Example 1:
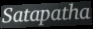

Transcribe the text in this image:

Satapatha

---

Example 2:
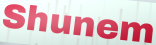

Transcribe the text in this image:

Shunem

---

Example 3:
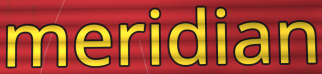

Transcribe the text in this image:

meridian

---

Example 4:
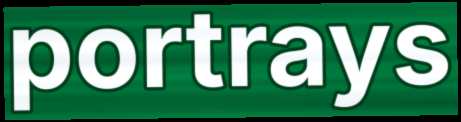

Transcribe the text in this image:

portrays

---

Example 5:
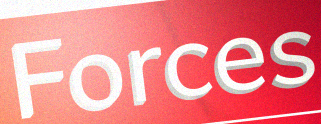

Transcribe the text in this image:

Forces